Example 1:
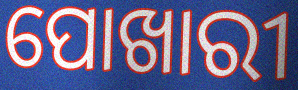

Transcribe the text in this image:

ପୋଖାରୀ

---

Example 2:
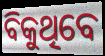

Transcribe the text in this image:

ବିକୁଥିବେ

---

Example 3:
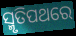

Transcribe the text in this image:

ସ୍ମୃତିପଥରେ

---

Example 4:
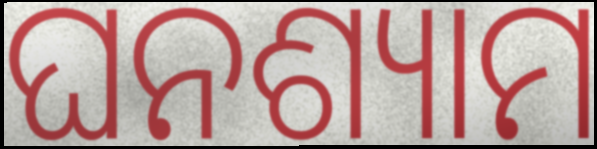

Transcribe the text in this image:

ଘନଶ୍ୟାମ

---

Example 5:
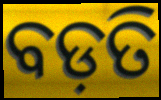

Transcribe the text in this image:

ବଡ଼ତି